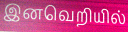
இனவெறியில்